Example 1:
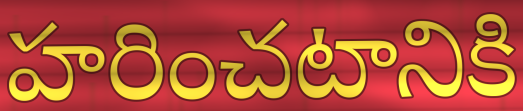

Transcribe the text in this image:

హరించటానికి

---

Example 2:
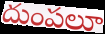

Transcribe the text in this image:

దుంపలూ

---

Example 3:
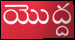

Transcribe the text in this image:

యొద్ద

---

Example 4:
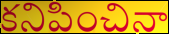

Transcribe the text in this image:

కనిపించినా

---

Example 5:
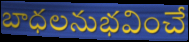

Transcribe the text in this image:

బాధలనుభవించే